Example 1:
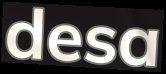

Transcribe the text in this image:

desa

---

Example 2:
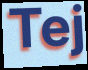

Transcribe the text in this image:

Tej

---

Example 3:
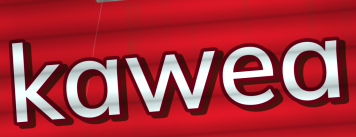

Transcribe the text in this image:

kawea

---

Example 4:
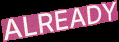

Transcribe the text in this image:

ALREADY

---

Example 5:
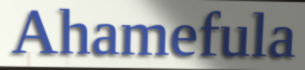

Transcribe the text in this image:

Ahamefula